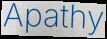
Apathy